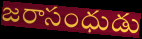
జరాసంధుడు